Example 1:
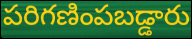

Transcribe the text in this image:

పరిగణింపబడ్డారు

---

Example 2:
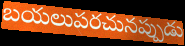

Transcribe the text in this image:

బయలుపరచునప్పుడు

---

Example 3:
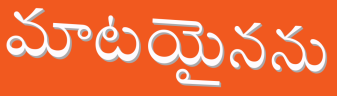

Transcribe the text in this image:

మాటయైనను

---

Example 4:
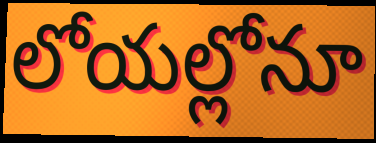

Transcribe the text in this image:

లోయల్లోనూ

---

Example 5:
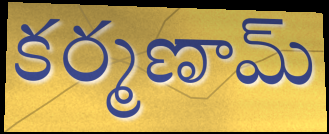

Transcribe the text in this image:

కర్మణామ్